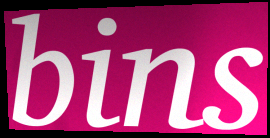
bins